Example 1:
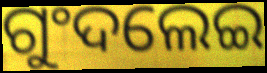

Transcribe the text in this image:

ଗୁଂଦଲେଇ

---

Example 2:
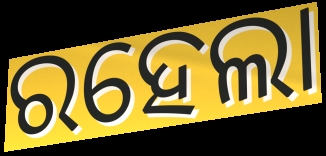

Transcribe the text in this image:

ରହେଲା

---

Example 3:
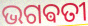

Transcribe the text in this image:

ଭଗଵତୀ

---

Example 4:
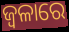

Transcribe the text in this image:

ଜ୍ୱଳାରେ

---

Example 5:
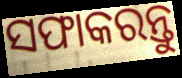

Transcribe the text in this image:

ସଫାକରନ୍ତୁ